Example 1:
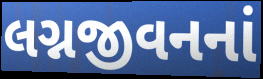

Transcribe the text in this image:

લગ્નજીવનનાં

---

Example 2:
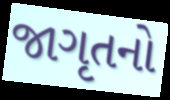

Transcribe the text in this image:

જાગૃતનો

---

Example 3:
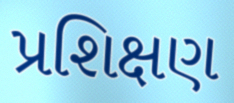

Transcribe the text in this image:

પ્રશિક્ષણ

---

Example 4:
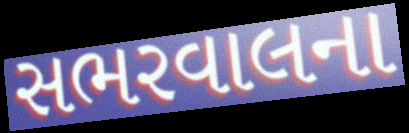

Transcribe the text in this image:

સભરવાલના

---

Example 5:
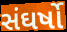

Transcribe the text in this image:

સંઘર્ષો